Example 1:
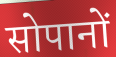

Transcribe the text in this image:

सोपानों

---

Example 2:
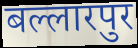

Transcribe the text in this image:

बल्लारपुर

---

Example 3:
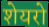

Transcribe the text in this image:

शेयरो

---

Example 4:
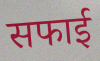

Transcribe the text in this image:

सफाई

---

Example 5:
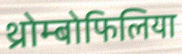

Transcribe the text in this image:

थ्रोम्बोफिलिया